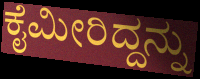
ಕೈಮೀರಿದ್ದನ್ನು